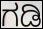
ಗಡಿ